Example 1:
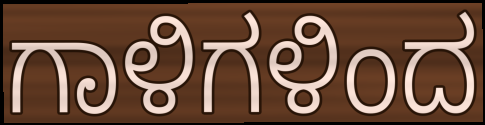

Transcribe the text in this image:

ಗಾಳಿಗಳಿಂದ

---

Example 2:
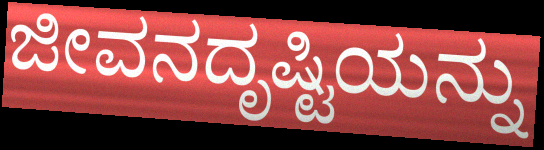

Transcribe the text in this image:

ಜೀವನದೃಷ್ಟಿಯನ್ನು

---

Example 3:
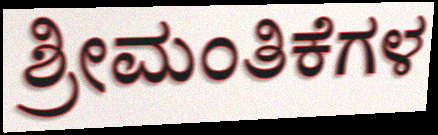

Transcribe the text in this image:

ಶ್ರೀಮಂತಿಕೆಗಳ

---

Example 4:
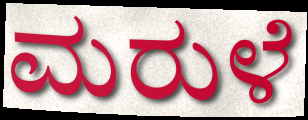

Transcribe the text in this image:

ಮರುಳೆ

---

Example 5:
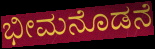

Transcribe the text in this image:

ಭೀಮನೊಡನೆ